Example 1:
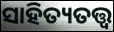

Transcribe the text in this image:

ସାହିତ୍ୟତତ୍ତ୍ୱ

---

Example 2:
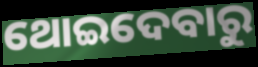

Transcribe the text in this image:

ଥୋଇଦେବାରୁ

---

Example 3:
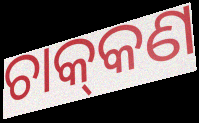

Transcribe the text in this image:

ଚାକ୍‌କଣ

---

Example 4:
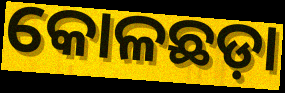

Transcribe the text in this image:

କୋଳଛଡ଼ା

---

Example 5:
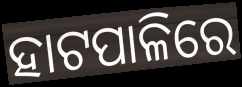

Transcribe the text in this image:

ହାଟପାଳିରେ